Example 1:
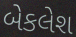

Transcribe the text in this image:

બેકલેશ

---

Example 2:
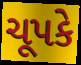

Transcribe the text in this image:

ચૂપકે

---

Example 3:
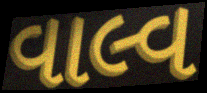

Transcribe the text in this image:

વાલ્વ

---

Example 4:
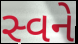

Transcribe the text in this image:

સ્વને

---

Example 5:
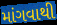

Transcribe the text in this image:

માંગવાથી